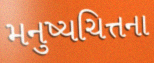
મનુષ્યચિત્તના